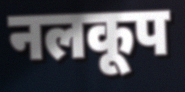
नलकूप